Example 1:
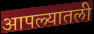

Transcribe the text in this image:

आपल्यातली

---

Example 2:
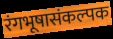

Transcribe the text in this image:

रंगभूषासंकल्पक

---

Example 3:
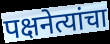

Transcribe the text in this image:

पक्षनेत्यांचा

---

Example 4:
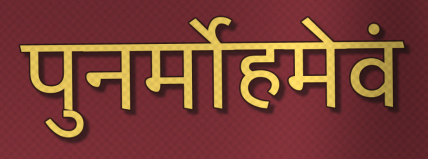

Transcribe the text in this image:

पुनर्मोहमेवं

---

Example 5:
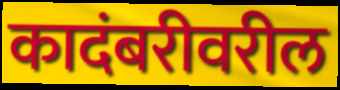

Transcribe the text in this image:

कादंबरीवरील